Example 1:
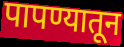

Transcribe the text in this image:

पापण्यातून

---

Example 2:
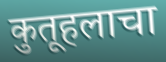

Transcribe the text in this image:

कुतूहलाचा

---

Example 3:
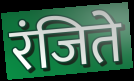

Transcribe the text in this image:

रंजिते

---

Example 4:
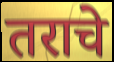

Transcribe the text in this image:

तराचे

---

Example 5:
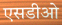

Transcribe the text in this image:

एसडीओ